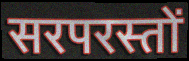
सरपरस्तों